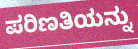
ಪರಿಣತಿಯನ್ನು